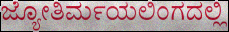
ಜ್ಯೋತಿರ್ಮಯಲಿಂಗದಲ್ಲಿ